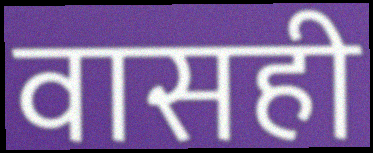
वासही